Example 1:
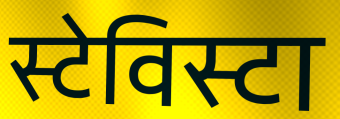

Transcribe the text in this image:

स्टेविस्टा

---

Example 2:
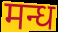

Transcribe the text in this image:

मन्ध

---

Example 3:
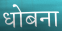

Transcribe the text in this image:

धोबना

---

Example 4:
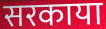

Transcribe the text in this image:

सरकाया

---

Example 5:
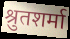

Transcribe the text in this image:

श्रुतशर्मा